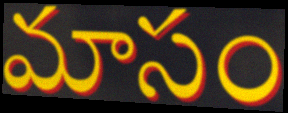
మాసం